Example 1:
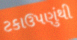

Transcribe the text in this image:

ટકાઉપણુંથી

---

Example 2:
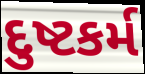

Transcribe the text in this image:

દુષ્ટકર્મ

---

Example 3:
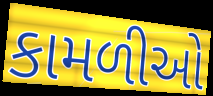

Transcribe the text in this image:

કામળીઓ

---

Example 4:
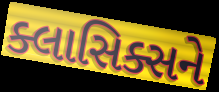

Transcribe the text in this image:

ક્લાસિક્સને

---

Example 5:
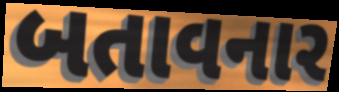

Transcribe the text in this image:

બતાવનાર